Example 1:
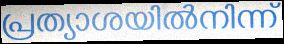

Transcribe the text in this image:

പ്രത്യാശയിൽനിന്ന്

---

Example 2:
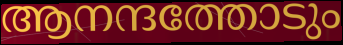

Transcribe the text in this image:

ആനന്ദത്തോടും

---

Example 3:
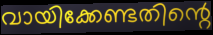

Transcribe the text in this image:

വായിക്കേണ്ടതിന്റെ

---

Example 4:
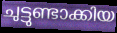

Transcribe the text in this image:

ചുട്ടുണ്ടാക്കിയ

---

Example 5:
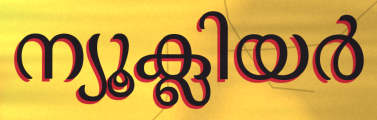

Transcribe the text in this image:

ന്യൂക്ലിയർ